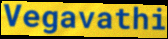
Vegavathi